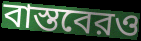
বাস্তবেরও